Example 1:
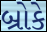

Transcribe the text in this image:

બ્રોકે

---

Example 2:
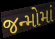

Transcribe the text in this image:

જન્મોમાં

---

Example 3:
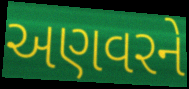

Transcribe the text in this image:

અણવરને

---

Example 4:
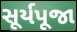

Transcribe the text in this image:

સૂર્યપૂજા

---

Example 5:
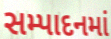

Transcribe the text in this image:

સમ્પાદનમાં